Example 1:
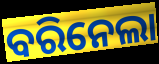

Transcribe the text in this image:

ବରିନେଲା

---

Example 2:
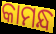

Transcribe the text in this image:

କାମନ୍ଧ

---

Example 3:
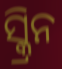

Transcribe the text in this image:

ସ୍କ୍ରିନ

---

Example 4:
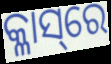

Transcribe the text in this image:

କ୍ଳାସ୍‌ରେ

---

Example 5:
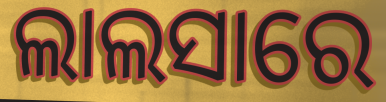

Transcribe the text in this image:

ଲାଲସାରେ